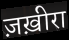
ज़ख़ीरा